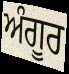
ਅੰਗੂਰ